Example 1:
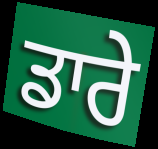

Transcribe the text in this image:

ਡਾਰੇ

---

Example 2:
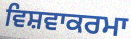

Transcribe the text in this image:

ਵਿਸ਼ਵਾਕਰਮਾ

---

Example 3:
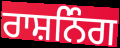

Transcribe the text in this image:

ਰਾਸ਼ਨਿੰਗ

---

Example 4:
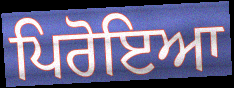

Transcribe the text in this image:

ਪਿਰੋਇਆ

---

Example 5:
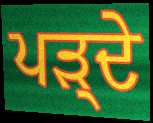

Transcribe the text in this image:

ਪੜ੍ਦੇ